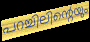
പറച്ചിലിന്റെയും